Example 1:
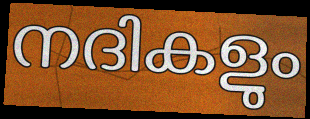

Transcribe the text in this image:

നദികളും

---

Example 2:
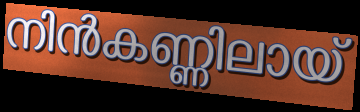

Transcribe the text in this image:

നിൻകണ്ണിലായ്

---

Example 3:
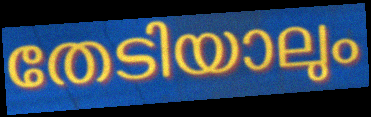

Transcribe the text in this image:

തേടിയാലും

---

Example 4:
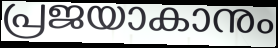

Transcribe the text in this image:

പ്രജയാകാനും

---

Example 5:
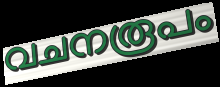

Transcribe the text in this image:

വചനരൂപം